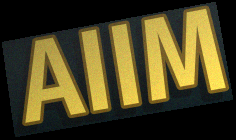
AIIM